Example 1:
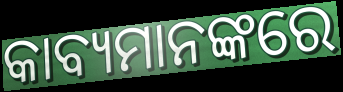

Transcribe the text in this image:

କାବ୍ୟମାନଙ୍କରେ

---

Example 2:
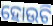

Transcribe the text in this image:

ହୋଉଚି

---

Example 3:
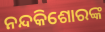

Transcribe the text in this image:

ନନ୍ଦକିଶୋରଙ୍କ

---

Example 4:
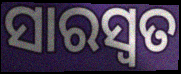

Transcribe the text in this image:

ସାରସ୍ବତ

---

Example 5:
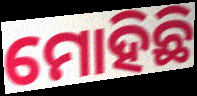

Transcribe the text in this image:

ମୋହିଛି